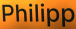
Philipp